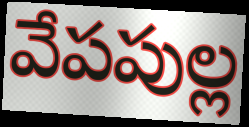
వేపపుల్ల